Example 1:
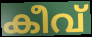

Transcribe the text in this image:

കീവ്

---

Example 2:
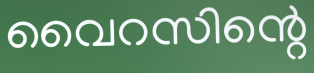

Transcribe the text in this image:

വൈറസിന്റെ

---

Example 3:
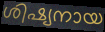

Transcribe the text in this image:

ശിഷ്യനായ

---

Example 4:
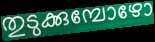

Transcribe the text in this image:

തുടുക്കുമ്പോഴോ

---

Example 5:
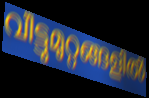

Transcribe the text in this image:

വീട്ടുമുറ്റങ്ങളിൽ